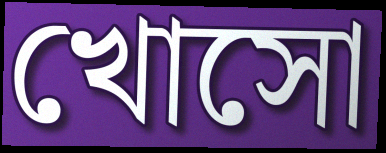
খোসো